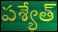
పశ్యేత్